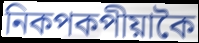
নিকপকপীয়াকৈ